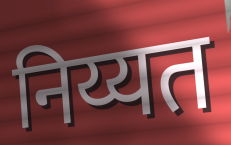
निय्यत